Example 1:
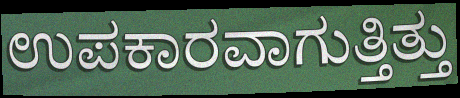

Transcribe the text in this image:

ಉಪಕಾರವಾಗುತ್ತಿತ್ತು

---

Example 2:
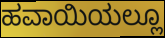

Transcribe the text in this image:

ಹವಾಯಿಯಲ್ಲೂ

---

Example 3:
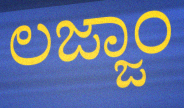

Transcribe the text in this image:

ಲಜ್ಜಾಂ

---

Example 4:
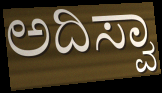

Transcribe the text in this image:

ಅದಿಸ್ವಾ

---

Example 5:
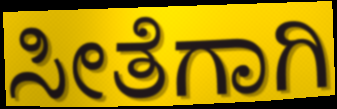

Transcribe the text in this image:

ಸೀತೆಗಾಗಿ